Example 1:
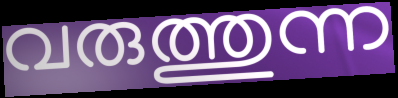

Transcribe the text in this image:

വരുത്തുന്ന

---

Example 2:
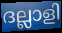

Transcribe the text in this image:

ദല്ലാളി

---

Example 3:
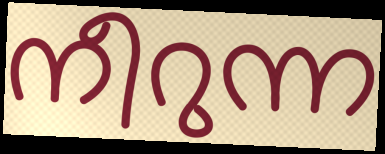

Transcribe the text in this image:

നീറുന്ന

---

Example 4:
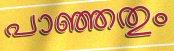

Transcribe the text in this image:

പാഞ്ഞതും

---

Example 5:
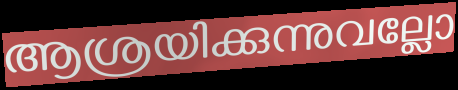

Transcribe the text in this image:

ആശ്രയിക്കുന്നുവല്ലോ